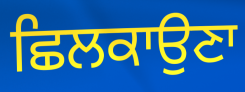
ਛਿਲਕਾਉਣਾ